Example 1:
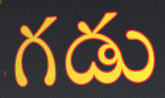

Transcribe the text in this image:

గడు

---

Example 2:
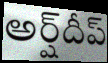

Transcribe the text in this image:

అర్ష్‌దీప్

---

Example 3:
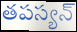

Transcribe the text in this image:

తపస్యన్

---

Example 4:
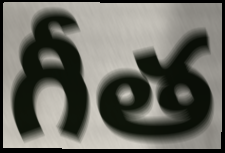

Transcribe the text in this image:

గీత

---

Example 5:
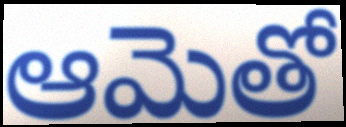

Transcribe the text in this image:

ఆమెతో